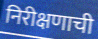
निरीक्षणाची